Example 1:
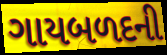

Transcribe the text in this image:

ગાયબળદની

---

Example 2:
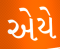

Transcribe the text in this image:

એયે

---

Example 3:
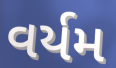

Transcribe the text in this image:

વર્યમ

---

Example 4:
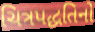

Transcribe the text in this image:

ચિત્રપદ્ધતિનો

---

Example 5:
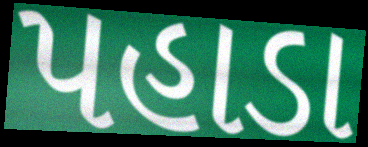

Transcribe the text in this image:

પહાડા